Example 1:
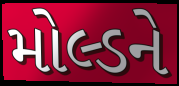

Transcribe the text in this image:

મોલ્ડને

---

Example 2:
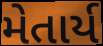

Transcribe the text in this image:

મેતાર્ય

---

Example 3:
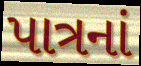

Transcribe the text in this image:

પાત્રનાં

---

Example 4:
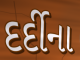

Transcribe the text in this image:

દર્દીના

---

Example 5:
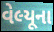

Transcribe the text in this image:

વેલ્યૂના